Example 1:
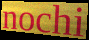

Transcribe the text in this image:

nochi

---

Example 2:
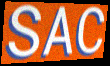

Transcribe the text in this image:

SAC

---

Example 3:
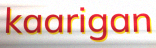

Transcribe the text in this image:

kaarigan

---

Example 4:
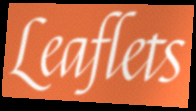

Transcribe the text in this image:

Leaflets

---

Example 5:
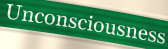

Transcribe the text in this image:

Unconsciousness